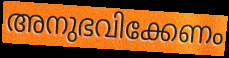
അനുഭവിക്കേണം